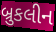
બ્રુકલીન